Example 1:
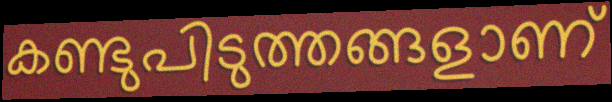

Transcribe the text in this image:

കണ്ടുപിടുത്തങ്ങളാണ്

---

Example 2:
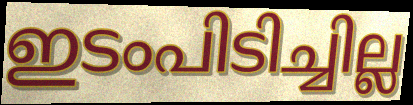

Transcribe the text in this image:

ഇടംപിടിച്ചില്ല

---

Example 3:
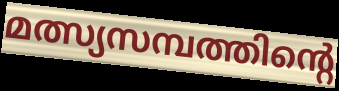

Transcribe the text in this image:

മത്സ്യസമ്പത്തിന്റെ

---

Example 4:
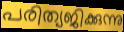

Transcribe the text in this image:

പരിത്യജിക്കുന്നു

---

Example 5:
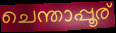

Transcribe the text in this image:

ചെന്താപ്പൂര്